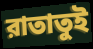
রাতাতুই